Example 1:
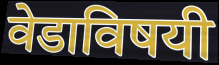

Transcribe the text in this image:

वेडाविषयी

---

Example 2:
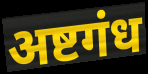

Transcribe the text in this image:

अष्टगंध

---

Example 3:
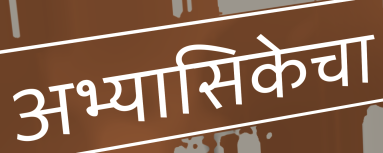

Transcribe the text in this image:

अभ्यासिकेचा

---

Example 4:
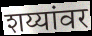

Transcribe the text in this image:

शय्यांवर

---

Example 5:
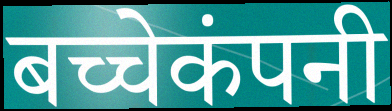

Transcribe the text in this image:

बच्चेकंपनी